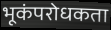
भूकंपरोधकता